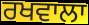
ਰਖਵਾਲਾ